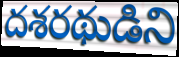
దశరథుడిని